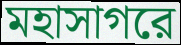
মহাসাগরে